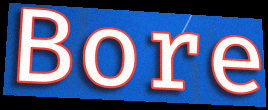
Bore